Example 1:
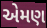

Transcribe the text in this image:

એમણ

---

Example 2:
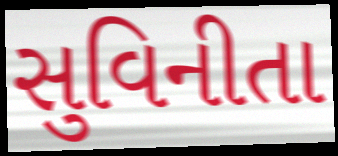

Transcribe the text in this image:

સુવિનીતા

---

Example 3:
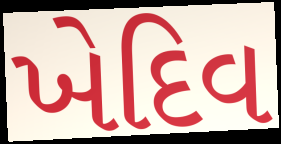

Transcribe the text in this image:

ખેદિવ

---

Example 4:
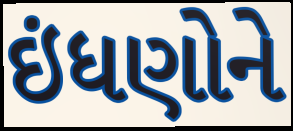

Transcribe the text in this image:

ઇંધણોને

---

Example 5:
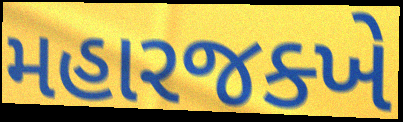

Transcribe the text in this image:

મહારજક્ખે